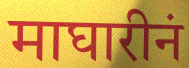
माघारीनं